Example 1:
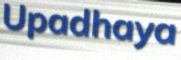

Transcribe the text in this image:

Upadhaya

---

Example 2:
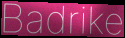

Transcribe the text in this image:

Badrike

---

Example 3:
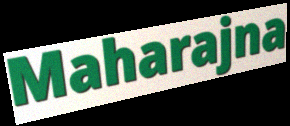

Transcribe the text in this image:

Maharajna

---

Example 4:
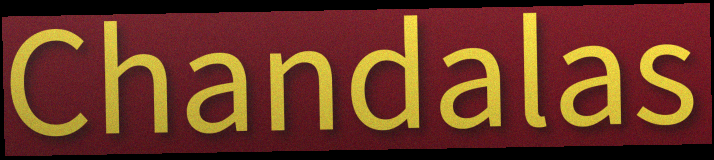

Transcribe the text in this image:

Chandalas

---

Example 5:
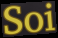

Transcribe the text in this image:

Soi